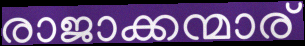
രാജാക്കന്മാര്